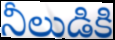
నీలుడికి